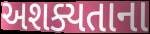
અશક્યતાના